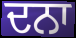
ਦਨਾ